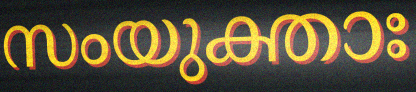
സംയുക്താഃ